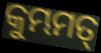
କୁମ୍ଭମତ୍